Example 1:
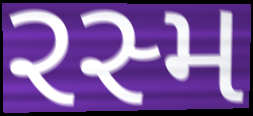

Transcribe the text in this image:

રસ્મ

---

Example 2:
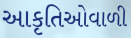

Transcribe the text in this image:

આકૃતિઓવાળી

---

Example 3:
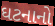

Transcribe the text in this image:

ઘટનાનો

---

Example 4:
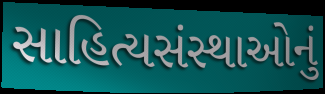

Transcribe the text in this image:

સાહિત્યસંસ્થાઓનું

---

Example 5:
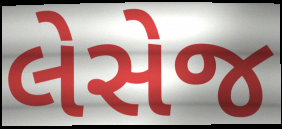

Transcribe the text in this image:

લેસેજ